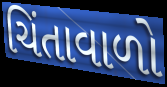
ચિંતાવાળો